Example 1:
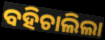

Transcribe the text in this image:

ବହିଚାଲିଲା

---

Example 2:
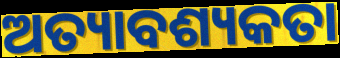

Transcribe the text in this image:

ଅତ୍ୟାବଶ୍ୟକତା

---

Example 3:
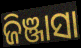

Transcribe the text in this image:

ଜିଞ୍ଜାସା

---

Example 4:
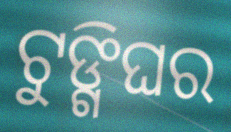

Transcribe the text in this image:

ଟୁଙ୍ଗିଘର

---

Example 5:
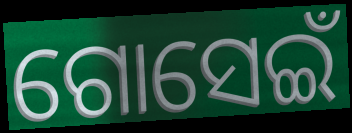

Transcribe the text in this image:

ଗୋସେଇଁ